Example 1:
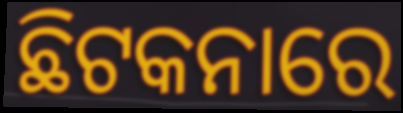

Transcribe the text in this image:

ଛିଟକନାରେ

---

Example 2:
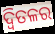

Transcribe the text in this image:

ଦ୍ୱିତଳର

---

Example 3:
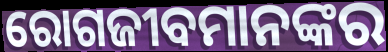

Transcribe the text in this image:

ରୋଗଜୀବମାନଙ୍କର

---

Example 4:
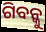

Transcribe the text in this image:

ଗିବନ୍କୁ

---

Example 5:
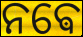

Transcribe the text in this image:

ନଵେ